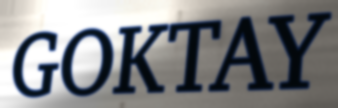
GOKTAY